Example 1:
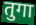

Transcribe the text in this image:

तुगा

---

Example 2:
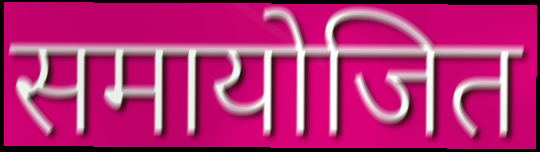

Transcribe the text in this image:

समायोजित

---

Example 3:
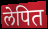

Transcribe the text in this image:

लेपित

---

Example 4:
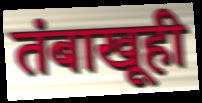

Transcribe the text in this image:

तंबाखूही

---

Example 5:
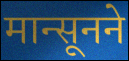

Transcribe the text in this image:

मान्सूनने